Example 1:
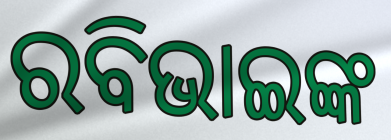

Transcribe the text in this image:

ରବିଭାଇଙ୍କ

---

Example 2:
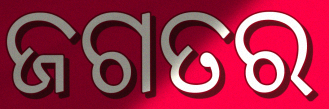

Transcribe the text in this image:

ଜଗତର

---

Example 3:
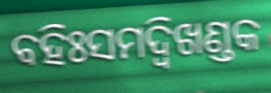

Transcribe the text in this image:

ବହିଃସମଦ୍ୱିଖଣ୍ଡକ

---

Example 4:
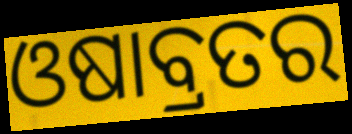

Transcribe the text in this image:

ଓଷାବ୍ରତର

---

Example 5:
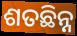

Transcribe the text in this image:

ଶତଛିନ୍ନ